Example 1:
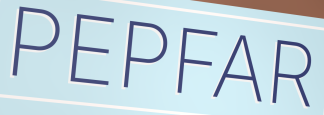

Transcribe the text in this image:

PEPFAR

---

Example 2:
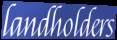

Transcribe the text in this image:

landholders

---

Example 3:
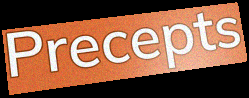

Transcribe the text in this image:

Precepts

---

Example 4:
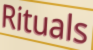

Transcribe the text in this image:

Rituals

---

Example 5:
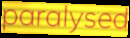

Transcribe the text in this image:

paralysed